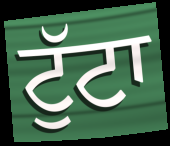
ਟੁੱਟਾ